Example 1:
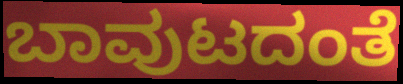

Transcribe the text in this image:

ಬಾವುಟದಂತೆ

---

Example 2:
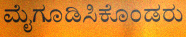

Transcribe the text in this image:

ಮೈಗೂಡಿಸಿಕೊಂಡರು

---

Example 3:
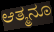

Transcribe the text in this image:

ಆತ್ಮನೂ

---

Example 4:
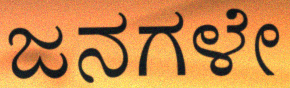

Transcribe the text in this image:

ಜನಗಳೇ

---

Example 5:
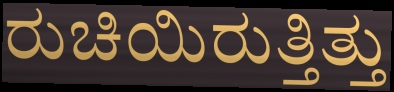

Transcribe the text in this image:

ರುಚಿಯಿರುತ್ತಿತ್ತು